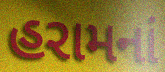
હરામનાં